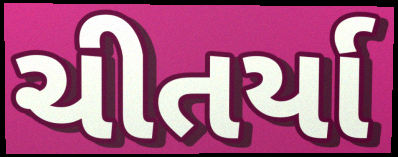
ચીતર્યા